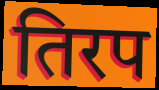
तिरप